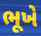
ભૂખે